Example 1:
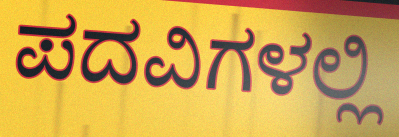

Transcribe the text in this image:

ಪದವಿಗಳಲ್ಲಿ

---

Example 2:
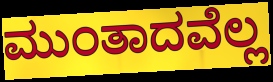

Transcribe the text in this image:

ಮುಂತಾದವೆಲ್ಲ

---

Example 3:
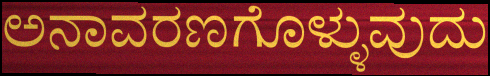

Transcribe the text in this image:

ಅನಾವರಣಗೊಳ್ಳುವುದು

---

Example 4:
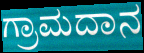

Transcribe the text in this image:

ಗ್ರಾಮದಾನ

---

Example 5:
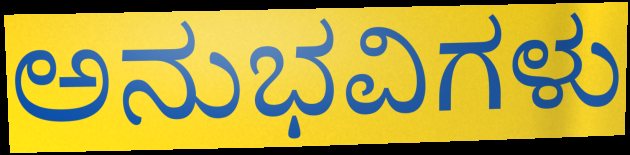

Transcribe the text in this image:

ಅನುಭವಿಗಳು